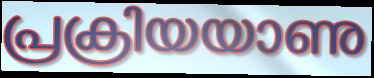
പ്രക്രിയയാണു